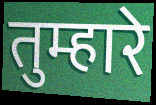
तुम्हारे